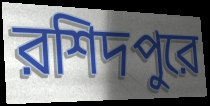
রশিদপুরে